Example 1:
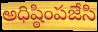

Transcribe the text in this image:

అధిష్ఠింపజేసి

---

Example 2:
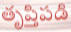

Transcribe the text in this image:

తృప్తిపడి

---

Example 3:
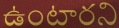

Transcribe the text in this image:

ఉంటారని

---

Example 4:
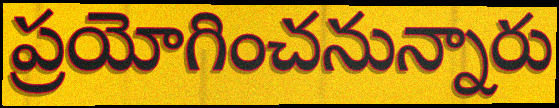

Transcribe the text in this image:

ప్రయోగించనున్నారు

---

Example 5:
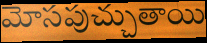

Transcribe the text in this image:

మోసపుచ్చుతాయి